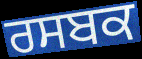
ਰਸਬਕ